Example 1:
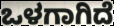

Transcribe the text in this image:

ಒಳಗಾಗಿದೆ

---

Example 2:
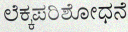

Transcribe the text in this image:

ಲೆಕ್ಕಪರಿಶೋಧನೆ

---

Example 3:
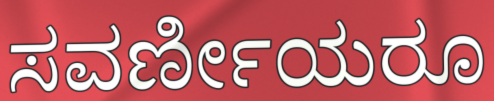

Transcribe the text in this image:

ಸವರ್ಣೀಯರೂ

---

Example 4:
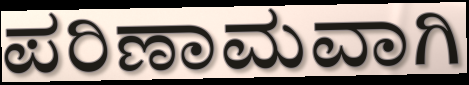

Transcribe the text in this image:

ಪರಿಣಾಮವಾಗಿ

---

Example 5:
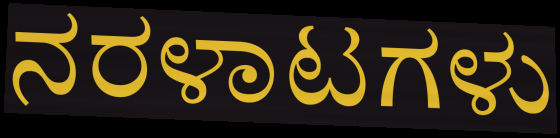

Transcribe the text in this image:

ನರಳಾಟಗಳು